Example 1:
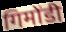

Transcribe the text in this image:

गिमोंडी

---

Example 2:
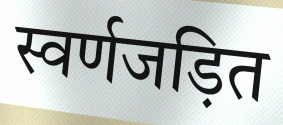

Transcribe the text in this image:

स्वर्णजड़ित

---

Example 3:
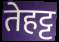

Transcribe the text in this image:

तेहट्ट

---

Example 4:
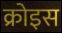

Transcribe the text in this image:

क्रोइस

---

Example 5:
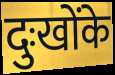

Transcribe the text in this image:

दुःखोंके